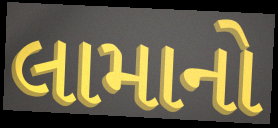
લામાનો